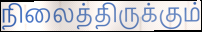
நிலைத்திருக்கும்